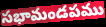
సభామండపము